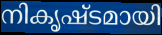
നികൃഷ്ടമായി